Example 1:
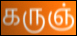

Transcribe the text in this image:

கருஞ்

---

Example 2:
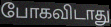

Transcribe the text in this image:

போகவிடாது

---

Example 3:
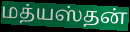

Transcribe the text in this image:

மத்யஸ்தன்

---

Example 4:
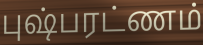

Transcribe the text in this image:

புஷ்பரட்ணம்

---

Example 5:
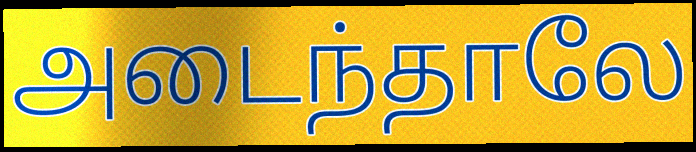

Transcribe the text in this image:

அடைந்தாலே